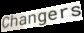
Changers